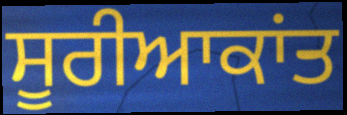
ਸੂਰੀਆਕਾਂਤ